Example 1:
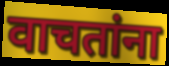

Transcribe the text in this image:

वाचतांना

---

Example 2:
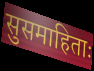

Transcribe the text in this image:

सुसमाहिताः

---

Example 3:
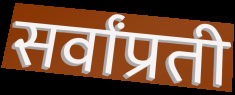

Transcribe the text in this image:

सर्वांप्रती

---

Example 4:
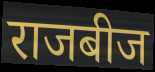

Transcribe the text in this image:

राजबीज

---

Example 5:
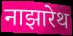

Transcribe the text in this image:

नाझारेथ